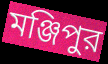
মঞ্জিপুর